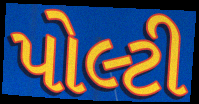
પોલ્ટી